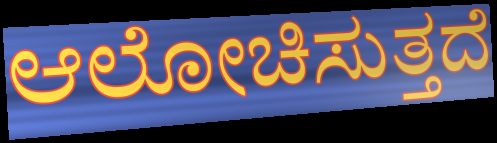
ಆಲೋಚಿಸುತ್ತದೆ